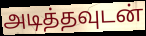
அடித்தவுடன்